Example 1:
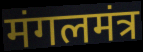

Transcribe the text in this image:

मंगलमंत्र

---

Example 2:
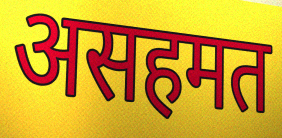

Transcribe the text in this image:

असहमत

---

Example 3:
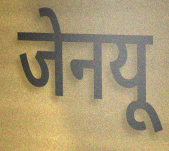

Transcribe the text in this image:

जेनयू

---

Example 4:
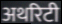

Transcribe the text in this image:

अथरिटी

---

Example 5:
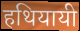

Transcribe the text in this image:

हथियायी